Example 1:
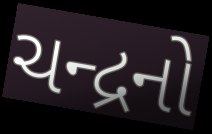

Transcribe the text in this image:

ચન્દ્રનો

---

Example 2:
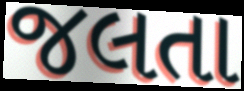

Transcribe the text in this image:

જલતા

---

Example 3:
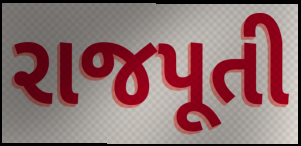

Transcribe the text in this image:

રાજપૂતી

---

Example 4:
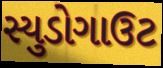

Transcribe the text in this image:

સ્યુડોગાઉટ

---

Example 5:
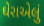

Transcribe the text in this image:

ઘેરાએલું